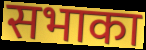
सभाका